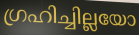
ഗ്രഹിച്ചില്ലയോ